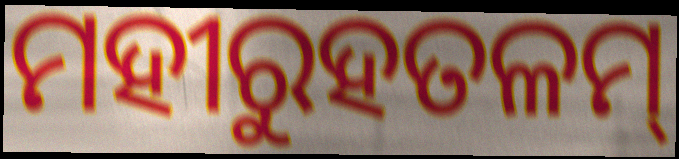
ମହୀରୁହତଳମ୍